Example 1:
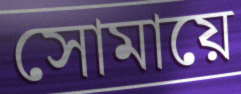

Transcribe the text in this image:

সোমায়ে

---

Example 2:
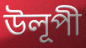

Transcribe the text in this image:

উলূপী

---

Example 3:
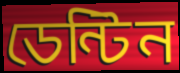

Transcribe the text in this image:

ডেন্টিন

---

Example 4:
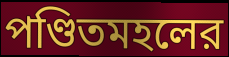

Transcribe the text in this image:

পণ্ডিতমহলের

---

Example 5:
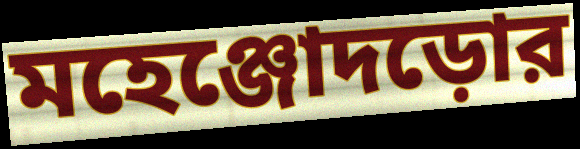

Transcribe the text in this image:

মহেঞ্জোদড়োর